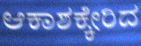
ಆಕಾಶಕ್ಕೇರಿದ